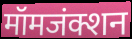
मॉमजंक्शन